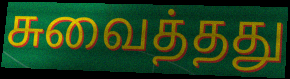
சுவைத்தது